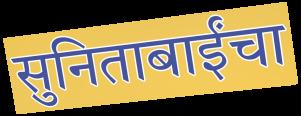
सुनिताबाईंचा